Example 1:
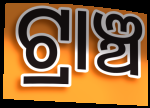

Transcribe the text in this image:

ଟ୍ରାଞ୍ଚ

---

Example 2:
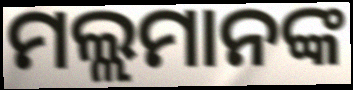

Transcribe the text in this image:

ମଲ୍ଲମାନଙ୍କ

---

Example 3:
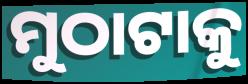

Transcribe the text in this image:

ମୁଠାଟାକୁ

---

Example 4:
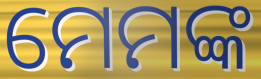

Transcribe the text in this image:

ମେମଙ୍କ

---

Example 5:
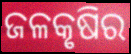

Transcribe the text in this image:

ଜଳକୃଷିର